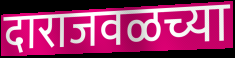
दाराजवळच्या